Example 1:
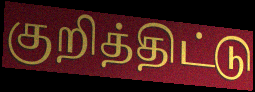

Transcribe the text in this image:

குறித்திட்டு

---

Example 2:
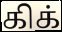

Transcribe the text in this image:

கிக்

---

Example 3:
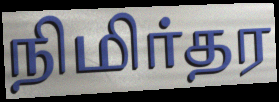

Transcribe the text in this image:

நிமிர்தர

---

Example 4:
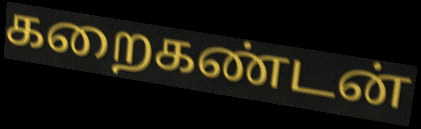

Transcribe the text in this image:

கறைகண்டன்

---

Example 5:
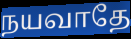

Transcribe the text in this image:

நயவாதே